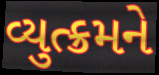
વ્યુત્ક્રમને